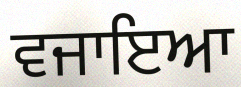
ਵਜਾਇਆ